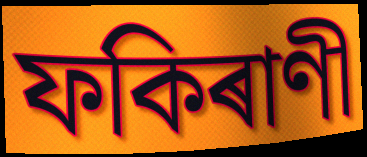
ফকিৰাণী